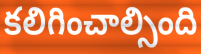
కలిగించాల్సింది